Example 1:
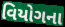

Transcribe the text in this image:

વિયોગના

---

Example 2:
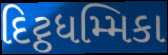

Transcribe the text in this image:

દિટ્ઠધમ્મિકા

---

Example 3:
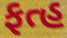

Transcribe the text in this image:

ફત્હ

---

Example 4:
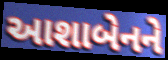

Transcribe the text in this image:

આશાબેનને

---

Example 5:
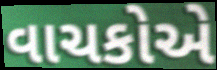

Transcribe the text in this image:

વાચકોએ